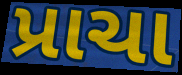
પ્રાચા